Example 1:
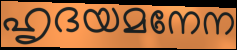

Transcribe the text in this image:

ഹൃദയമനേന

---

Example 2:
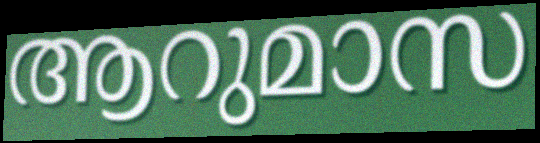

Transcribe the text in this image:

ആറുമാസ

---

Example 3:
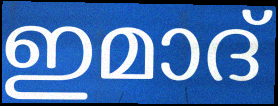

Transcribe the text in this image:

ഇമാദ്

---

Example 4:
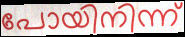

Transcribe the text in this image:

പോയിനിന്ന്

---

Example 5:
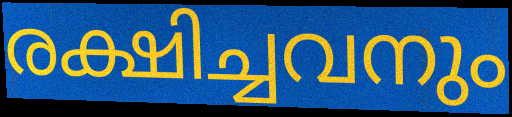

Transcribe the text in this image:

രക്ഷിച്ചവനും